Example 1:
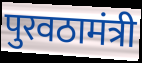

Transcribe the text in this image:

पुरवठामंत्री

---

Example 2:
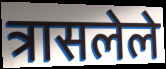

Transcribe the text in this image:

त्रासलेले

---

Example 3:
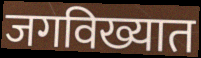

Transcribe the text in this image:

जगविख्यात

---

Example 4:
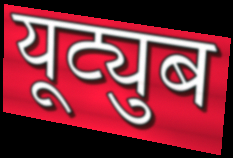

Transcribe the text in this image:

यूट्युब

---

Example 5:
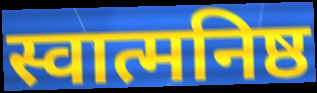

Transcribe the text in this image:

स्वात्मनिष्ठ